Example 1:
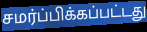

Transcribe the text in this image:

சமர்ப்பிக்கப்பட்டது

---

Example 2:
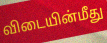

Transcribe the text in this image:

விடையின்மீது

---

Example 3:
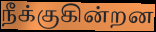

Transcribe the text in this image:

நீக்குகின்றன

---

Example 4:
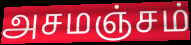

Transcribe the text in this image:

அசமஞ்சம்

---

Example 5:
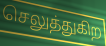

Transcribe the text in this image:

செலுத்துகிற